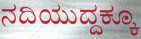
ನದಿಯುದ್ದಕ್ಕೂ